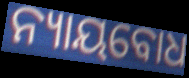
ନ୍ୟାୟବୋଧ